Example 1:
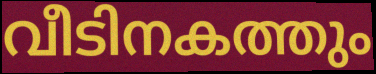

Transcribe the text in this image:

വീടിനകത്തും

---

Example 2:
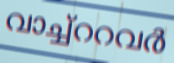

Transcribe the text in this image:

വാച്ച്ററവർ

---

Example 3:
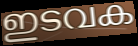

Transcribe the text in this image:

ഇടവക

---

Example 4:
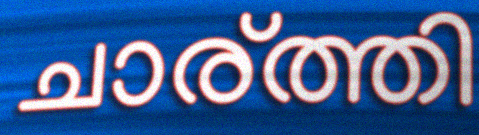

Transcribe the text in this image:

ചാര്ത്തി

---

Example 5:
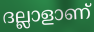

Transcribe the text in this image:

ദല്ലാളാണ്